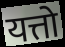
यत्तो